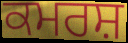
ਕਮਰਸ਼